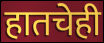
हातचेही